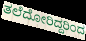
ತಲೆದೋರಿದ್ದರಿಂದ